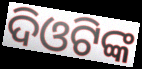
ଦିଓଟିଙ୍କ